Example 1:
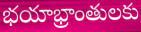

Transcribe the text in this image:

భయాభ్రాంతులకు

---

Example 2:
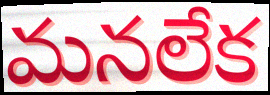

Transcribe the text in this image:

మనలేక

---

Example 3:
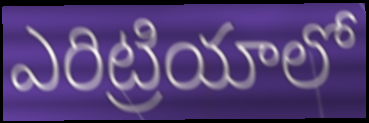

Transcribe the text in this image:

ఎరిట్రియాలో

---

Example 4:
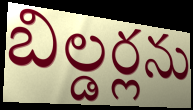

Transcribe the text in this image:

బిల్డర్లను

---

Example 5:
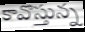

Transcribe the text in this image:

కావొస్తున్న